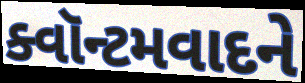
ક્વૉન્ટમવાદને